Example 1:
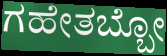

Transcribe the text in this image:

ಗಹೇತಬ್ಬೋ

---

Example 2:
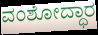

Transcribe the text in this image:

ವಂಶೋದ್ಧಾರ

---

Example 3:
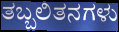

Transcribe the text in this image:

ತಬ್ಬಲಿತನಗಳು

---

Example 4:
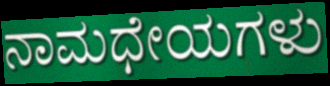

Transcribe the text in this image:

ನಾಮಧೇಯಗಳು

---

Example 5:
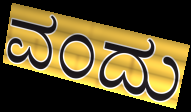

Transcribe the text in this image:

ವಂದು